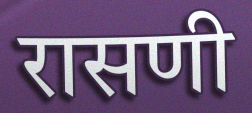
रासणी